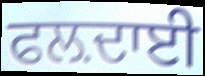
ਫਲ਼ਦਾਈ